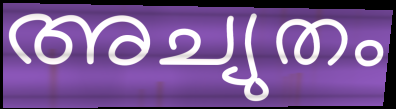
അച്യുതം